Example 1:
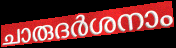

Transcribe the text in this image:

ചാരുദർശനാം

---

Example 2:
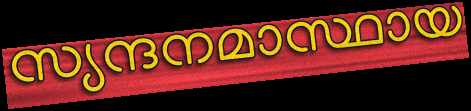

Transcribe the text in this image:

സ്യന്ദനമാസ്ഥായ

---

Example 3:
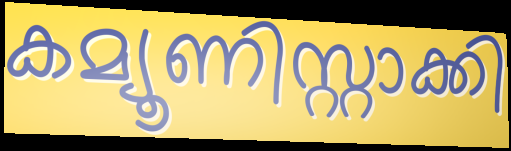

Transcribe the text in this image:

കമ്യൂണിസ്റ്റാക്കി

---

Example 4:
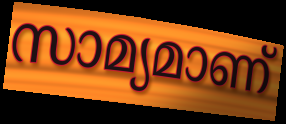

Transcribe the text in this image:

സാമ്യമാണ്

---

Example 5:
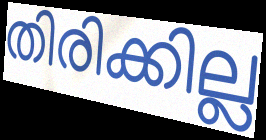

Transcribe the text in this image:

തിരിക്കില്ല